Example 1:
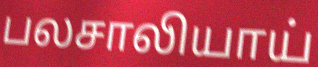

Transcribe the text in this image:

பலசாலியாய்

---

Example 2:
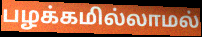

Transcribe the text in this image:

பழக்கமில்லாமல்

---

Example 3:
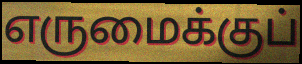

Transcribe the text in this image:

எருமைக்குப்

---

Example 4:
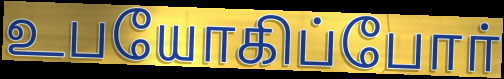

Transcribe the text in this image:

உபயோகிப்போர்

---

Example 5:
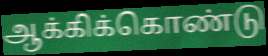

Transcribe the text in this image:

ஆக்கிக்கொண்டு